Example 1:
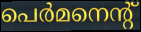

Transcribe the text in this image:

പെർമനെന്റ്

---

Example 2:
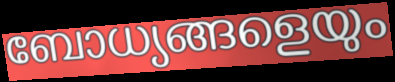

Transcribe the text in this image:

ബോധ്യങ്ങളെയും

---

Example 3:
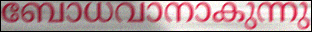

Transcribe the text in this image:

ബോധവാനാകുന്നു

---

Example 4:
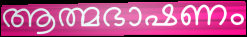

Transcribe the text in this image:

ആത്മഭാഷണം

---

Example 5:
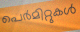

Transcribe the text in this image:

പെർമിറ്റുകൾ